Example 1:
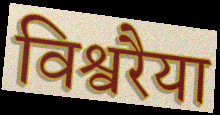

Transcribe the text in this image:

विश्वरैया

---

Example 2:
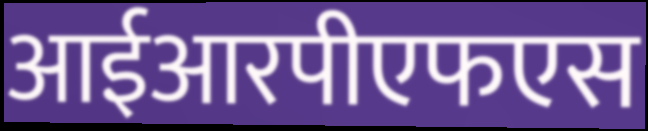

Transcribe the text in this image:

आईआरपीएफएस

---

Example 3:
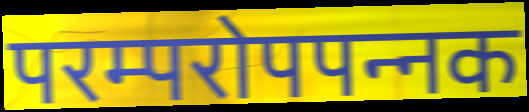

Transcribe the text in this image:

परम्परोपपन्नक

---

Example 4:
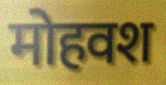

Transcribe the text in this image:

मोहवश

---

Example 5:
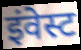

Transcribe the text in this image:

इंवेस्ट